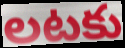
లటకు